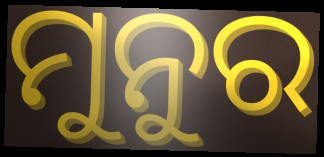
ମୁନୁର